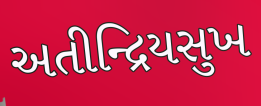
અતીન્દ્રિયસુખ